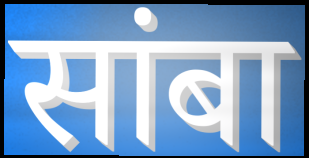
सांबा